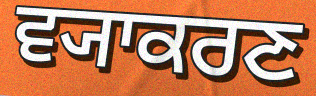
ਵ੍ਯਾਕਰਣ